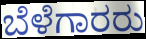
ಬೆಳೆಗಾರರು